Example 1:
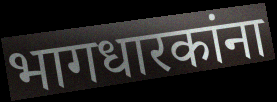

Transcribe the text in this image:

भागधारकांना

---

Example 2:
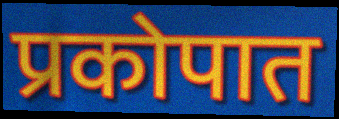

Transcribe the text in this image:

प्रकोपात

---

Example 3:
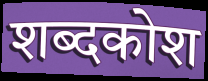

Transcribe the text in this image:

शब्दकोश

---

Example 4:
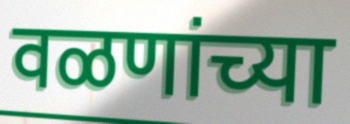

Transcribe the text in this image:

वळणांच्या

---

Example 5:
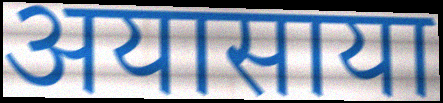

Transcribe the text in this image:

अयासाया